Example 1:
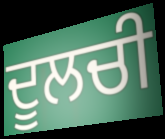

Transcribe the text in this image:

ਦੂਲਚੀ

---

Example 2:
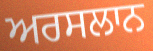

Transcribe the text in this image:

ਅਰਸਲਾਨ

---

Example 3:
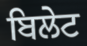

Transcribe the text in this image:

ਬਿਲੇਟ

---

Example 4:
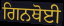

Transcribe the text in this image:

ਗਿਨਥੋਈ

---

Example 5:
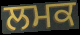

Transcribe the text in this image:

ਲਮਕ